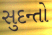
સુદન્તો